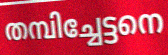
തമ്പിച്ചേട്ടനെ